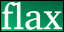
flax